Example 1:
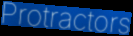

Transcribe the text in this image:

Protractors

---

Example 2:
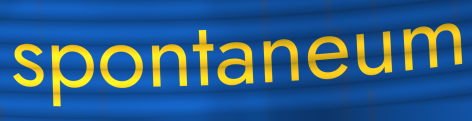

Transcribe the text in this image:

spontaneum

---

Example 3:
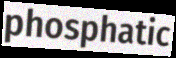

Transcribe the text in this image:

phosphatic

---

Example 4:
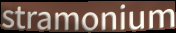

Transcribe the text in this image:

stramonium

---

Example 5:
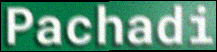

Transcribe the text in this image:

Pachadi